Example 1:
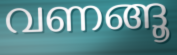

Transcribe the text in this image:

വണങ്ങൂ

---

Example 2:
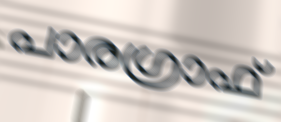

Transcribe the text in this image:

പാരഗ്രാഫ്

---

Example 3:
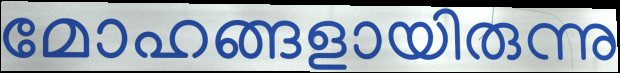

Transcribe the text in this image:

മോഹങ്ങളായിരുന്നു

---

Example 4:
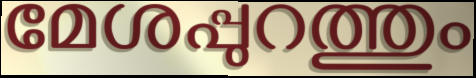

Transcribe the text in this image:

മേശപ്പുറത്തും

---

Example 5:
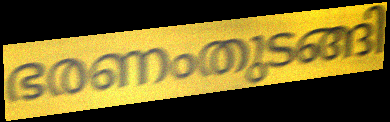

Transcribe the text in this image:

ഭരണംതുടങ്ങി